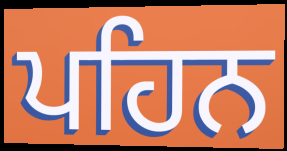
ਪਹਿਨ